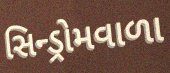
સિન્ડ્રોમવાળા